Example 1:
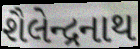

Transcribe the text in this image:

શૈલેન્દ્રનાથ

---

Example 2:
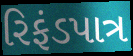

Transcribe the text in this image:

રિફંડપાત્ર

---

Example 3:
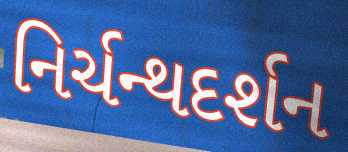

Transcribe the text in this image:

નિર્ચન્થદર્શન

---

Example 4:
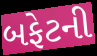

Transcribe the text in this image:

બફેટની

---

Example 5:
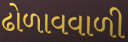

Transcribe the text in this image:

ઢોળાવવાળી